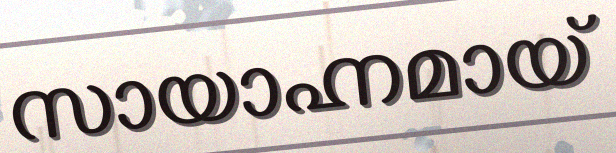
സായാഹ്നമായ്